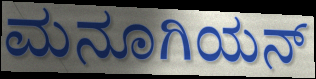
ಮನೂಗಿಯನ್